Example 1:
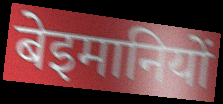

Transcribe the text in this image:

बेइमानियों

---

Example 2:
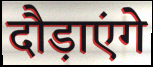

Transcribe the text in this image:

दौड़ाएंगे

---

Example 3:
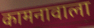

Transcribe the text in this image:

कामनावाला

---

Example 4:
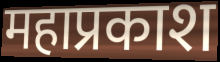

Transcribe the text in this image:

महाप्रकाश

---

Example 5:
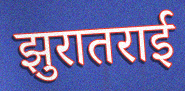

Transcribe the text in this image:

झुरातराई